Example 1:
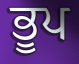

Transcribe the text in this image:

ਭੂਪ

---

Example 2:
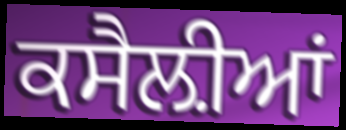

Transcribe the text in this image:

ਕਸੈਲ਼ੀਆਂ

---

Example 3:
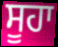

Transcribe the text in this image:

ਸੂਹਾ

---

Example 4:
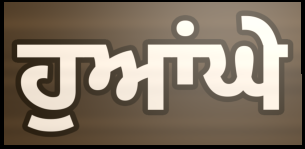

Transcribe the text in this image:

ਹੁਆਂਘੇ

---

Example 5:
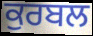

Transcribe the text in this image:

ਕੁਰਬਲ